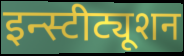
इन्स्टीट्यूशन